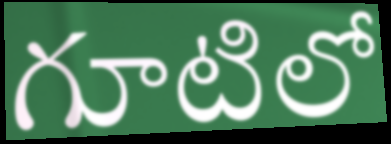
గూటిలో